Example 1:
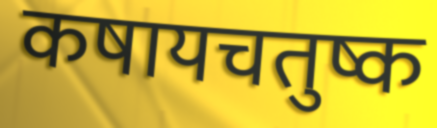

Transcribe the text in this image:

कषायचतुष्क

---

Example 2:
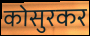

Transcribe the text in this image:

कोसुरकर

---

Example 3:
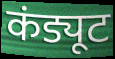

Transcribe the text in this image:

कंड्यूट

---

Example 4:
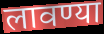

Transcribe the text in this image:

लावण्या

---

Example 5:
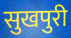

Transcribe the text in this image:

सुखपुरी